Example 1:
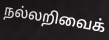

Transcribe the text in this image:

நல்லறிவைக்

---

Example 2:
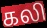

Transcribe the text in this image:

கலி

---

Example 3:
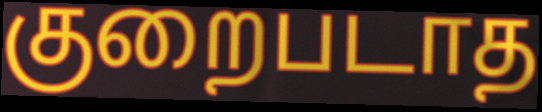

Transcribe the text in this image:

குறைபடாத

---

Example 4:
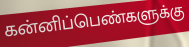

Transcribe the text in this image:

கன்னிப்பெண்களுக்கு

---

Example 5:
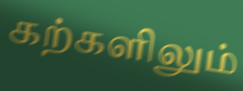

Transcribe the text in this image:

கற்களிலும்